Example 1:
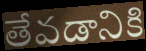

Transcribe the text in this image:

తేవడానికి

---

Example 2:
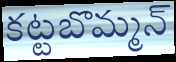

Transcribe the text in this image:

కట్టబొమ్మన్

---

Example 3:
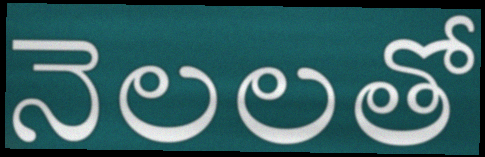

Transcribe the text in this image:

నెలలతో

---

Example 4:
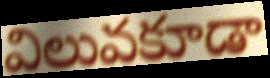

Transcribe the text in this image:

విలువకూడా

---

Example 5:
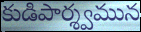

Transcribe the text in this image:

కుడిపార్శ్వమున